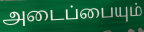
அடைப்பையும்